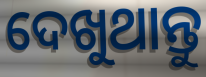
ଦେଖୁଥାନ୍ତୁ